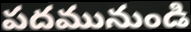
పదమునుండి